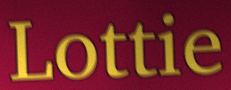
Lottie